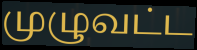
முழுவட்ட